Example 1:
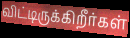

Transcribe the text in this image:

விட்டிருக்கிறீர்கள்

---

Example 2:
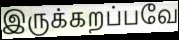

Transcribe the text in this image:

இருக்கறப்பவே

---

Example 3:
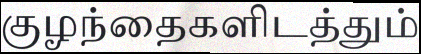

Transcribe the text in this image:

குழந்தைகளிடத்தும்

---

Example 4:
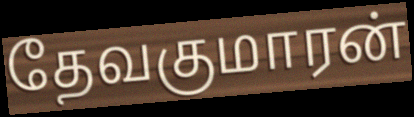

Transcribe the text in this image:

தேவகுமாரன்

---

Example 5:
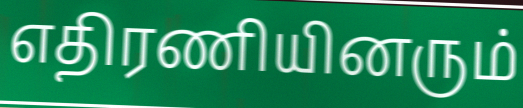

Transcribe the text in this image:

எதிரணியினரும்